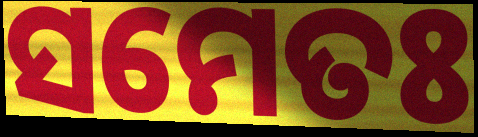
ସମେତଃ